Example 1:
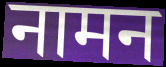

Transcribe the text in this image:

नामन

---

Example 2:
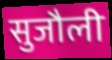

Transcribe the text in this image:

सुजौली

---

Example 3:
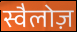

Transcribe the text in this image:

स्वैलोज़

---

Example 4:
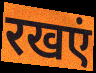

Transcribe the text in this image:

रखएं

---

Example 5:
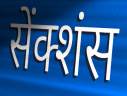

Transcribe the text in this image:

सेंक्शंस